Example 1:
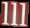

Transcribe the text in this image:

lll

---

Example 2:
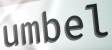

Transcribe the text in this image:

umbel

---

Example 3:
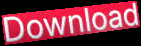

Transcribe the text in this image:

Download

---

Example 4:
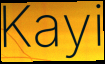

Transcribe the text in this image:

Kayi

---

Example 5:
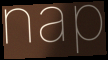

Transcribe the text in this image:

nap